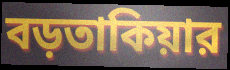
বড়তাকিয়ার